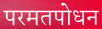
परमतपोधन